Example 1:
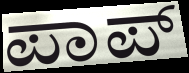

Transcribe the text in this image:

ಪಾಪ್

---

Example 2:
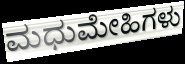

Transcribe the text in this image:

ಮಧುಮೇಹಿಗಳು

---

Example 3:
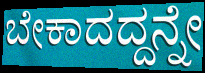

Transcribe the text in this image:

ಬೇಕಾದದ್ದನ್ನೇ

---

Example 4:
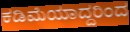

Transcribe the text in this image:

ಕಡಿಮೆಯಾದ್ದರಿಂದ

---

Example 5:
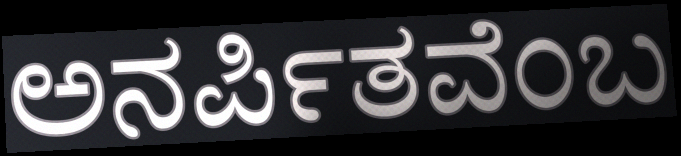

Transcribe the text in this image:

ಅನರ್ಪಿತವೆಂಬ